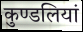
कुण्डलियां